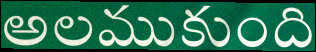
అలముకుంది